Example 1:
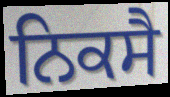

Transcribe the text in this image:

ਨਿਕਸੈ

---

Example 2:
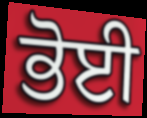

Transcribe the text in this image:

ਭੋਈ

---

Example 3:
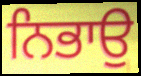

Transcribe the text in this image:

ਨਿਭਾਉ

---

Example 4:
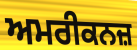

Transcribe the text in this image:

ਅਮਰੀਕਨਜ਼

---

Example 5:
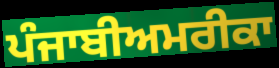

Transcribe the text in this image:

ਪੰਜਾਬੀਅਮਰੀਕਾ